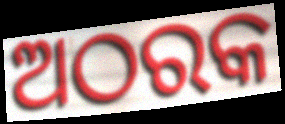
ଅଠରକ